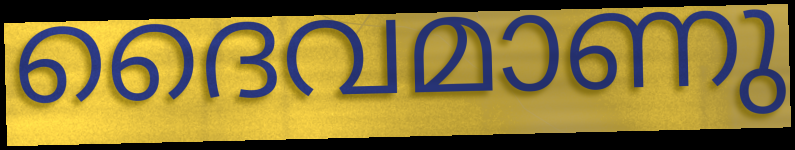
ദൈവമാണു